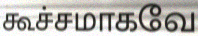
கூச்சமாகவே